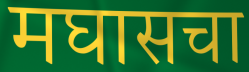
मघासचा